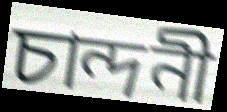
চান্দনী